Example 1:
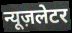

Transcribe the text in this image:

न्यूज़लेटर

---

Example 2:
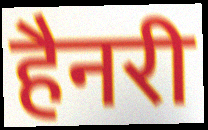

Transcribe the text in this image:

हैनरी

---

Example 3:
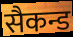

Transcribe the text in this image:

सैकन्ड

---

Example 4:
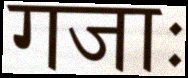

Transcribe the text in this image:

गजाः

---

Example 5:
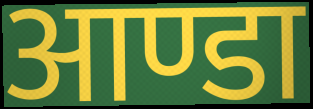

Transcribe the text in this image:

आण्डा